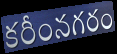
కరీంనగరం